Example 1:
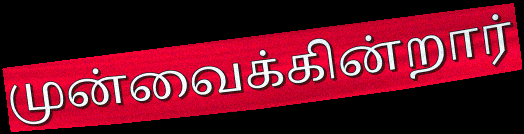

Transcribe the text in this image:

முன்வைக்கின்றார்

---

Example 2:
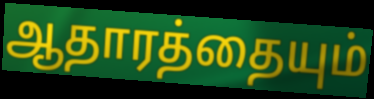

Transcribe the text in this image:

ஆதாரத்தையும்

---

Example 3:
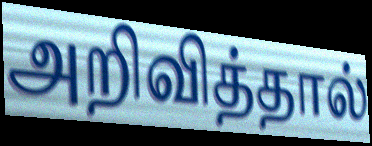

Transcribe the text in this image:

அறிவித்தால்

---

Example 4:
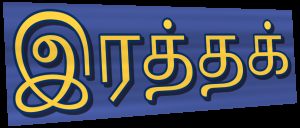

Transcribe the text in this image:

இரத்தக்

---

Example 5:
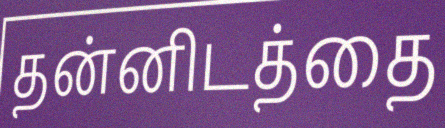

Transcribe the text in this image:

தன்னிடத்தை